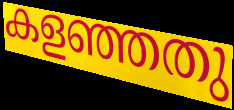
കളഞ്ഞതു